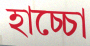
হাচ্চো